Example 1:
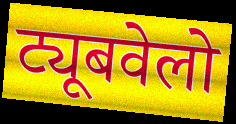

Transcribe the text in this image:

ट्यूबवेलो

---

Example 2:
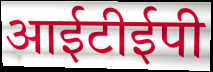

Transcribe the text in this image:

आईटीईपी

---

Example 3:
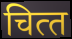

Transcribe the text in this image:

चित्‍त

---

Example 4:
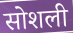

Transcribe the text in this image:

सोशली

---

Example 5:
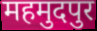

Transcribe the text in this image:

महमुदपुर